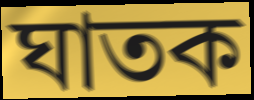
ঘাতক